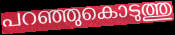
പറഞ്ഞുകൊടുത്തു